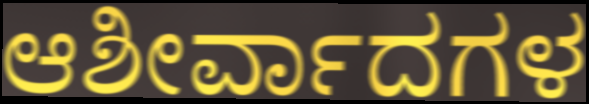
ಆಶೀರ್ವಾದಗಳ